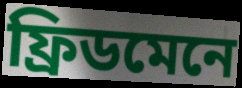
ফ্ৰিডমেনে